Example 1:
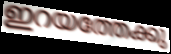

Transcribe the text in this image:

ഇറയത്തേക്കു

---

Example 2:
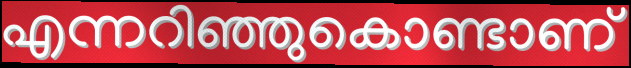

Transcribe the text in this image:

എന്നറിഞ്ഞുകൊണ്ടാണ്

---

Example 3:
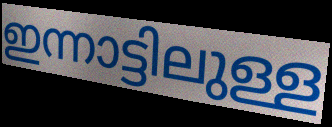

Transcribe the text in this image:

ഇന്നാട്ടിലുള്ള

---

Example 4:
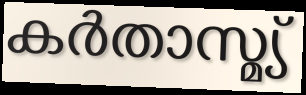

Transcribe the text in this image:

കർതാസ്മ്യ്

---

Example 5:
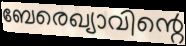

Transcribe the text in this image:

ബേരെഖ്യാവിന്റെ